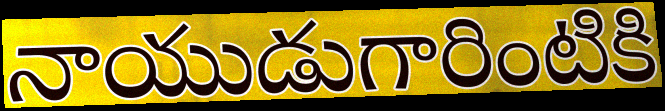
నాయుడుగారింటికి